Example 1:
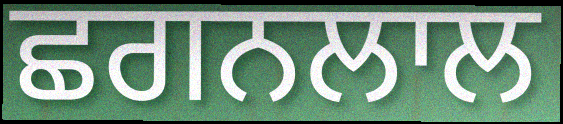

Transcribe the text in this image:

ਛਗਨਲਾਲ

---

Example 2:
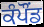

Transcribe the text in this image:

ਕੰਪੌਂਡ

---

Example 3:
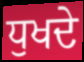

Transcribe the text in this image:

ਧੁਖਦੇ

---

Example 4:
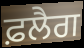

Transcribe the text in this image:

ਫ਼ਲੈਗ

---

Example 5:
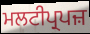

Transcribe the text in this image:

ਮਲਟੀਪ੍ਰਪਜ਼